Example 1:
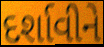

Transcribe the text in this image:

દર્શાવીને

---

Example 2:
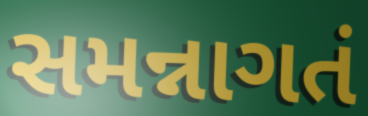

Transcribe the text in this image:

સમન્નાગતં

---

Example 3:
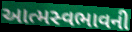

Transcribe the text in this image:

આત્મસ્વભાવની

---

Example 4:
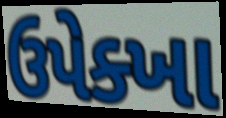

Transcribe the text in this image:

ઉપેક્ખા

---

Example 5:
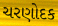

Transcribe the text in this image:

ચરણોદક